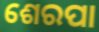
ଶେରପା